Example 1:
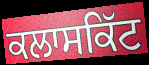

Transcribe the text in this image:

ਕਲਾਸਕਿੱਟ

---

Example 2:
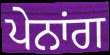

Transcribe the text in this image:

ਪੇਨਾਂਗ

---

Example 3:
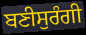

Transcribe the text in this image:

ਬਣੀਸੁਰੰਗੀ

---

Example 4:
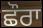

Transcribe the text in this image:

ਛੌਰਾ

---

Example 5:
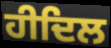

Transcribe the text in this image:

ਹੀਦਿਲ